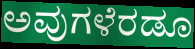
ಅವುಗಳೆರಡೂ